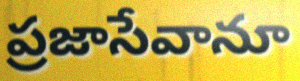
ప్రజాసేవానూ